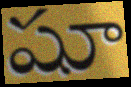
షూ